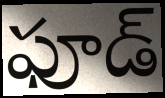
ఫూడ్